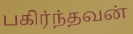
பகிர்ந்தவன்